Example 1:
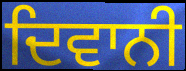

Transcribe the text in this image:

ਦਿਵਾਨੀ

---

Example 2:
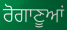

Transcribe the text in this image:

ਰੋਗਾਣੂਆਂ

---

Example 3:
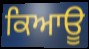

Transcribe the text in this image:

ਕਿਆਊ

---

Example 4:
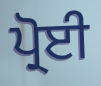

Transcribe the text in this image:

ਪ੍ਰੋਈ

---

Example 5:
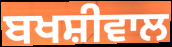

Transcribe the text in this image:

ਬਖਸ਼ੀਵਾਲ